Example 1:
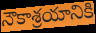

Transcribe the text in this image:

నౌకాశ్రయానికి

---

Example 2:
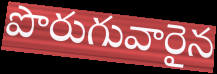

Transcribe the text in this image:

పొరుగువారైన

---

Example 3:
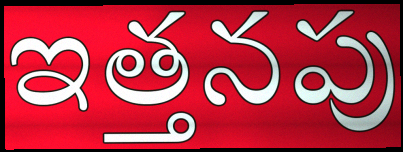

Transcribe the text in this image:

ఇత్తనపు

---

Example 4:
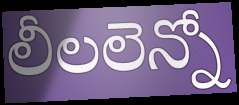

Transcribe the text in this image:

లీలలెన్నో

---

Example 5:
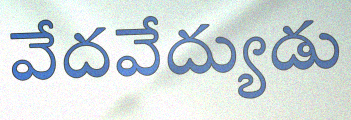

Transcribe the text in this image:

వేదవేద్యుడు